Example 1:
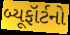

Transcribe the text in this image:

બ્યૂફૉર્ટનો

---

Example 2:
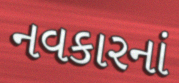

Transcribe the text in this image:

નવકારનાં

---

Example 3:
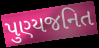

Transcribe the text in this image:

પુણ્યજનિત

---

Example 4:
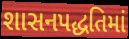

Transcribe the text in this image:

શાસનપદ્ધતિમાં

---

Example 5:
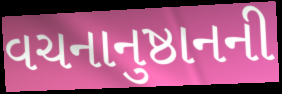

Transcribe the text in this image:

વચનાનુષ્ઠાનની